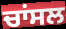
ਚਾਂਸਲ